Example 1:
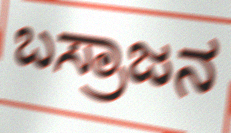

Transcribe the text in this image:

ಬಸ್ರಾಜನ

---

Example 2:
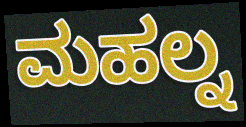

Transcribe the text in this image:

ಮಹಲ್ನ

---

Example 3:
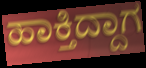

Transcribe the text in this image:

ಹಾಕ್ತಿದ್ದಾಗ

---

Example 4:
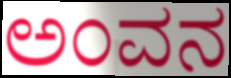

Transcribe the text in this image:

ಅಂವನ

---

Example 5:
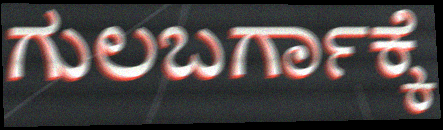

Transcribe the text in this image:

ಗುಲಬರ್ಗಾಕ್ಕೆ